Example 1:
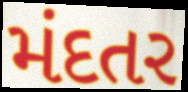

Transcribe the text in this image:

મંદતર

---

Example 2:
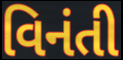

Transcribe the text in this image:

વિનંતી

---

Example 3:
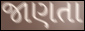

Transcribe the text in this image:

જાણતા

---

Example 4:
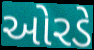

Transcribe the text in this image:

ઓરડે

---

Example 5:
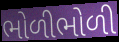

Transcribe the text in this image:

ભોળીભોળી